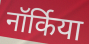
नॉर्किया